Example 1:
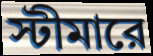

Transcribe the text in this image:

স্টীমারে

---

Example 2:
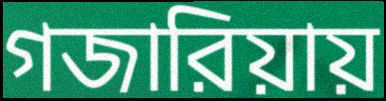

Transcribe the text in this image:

গজারিয়ায়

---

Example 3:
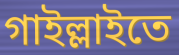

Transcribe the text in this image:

গাইল্লাইতে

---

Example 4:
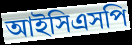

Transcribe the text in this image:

আইসিএসপি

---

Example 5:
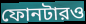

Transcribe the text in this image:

ফোনটারও